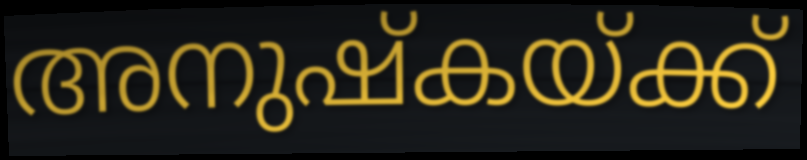
അനുഷ്കയ്ക്ക്